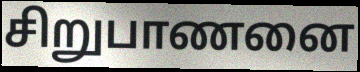
சிறுபாணனை